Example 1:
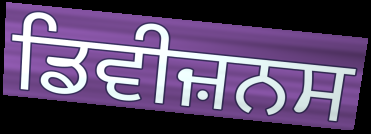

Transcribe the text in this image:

ਡਿਵੀਜ਼ਨਸ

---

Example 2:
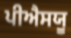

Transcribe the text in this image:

ਪੀਐਸਯੂ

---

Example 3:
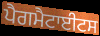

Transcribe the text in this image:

ਪੈਗਮੈਟਾਈਟਸ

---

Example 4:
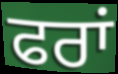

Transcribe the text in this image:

ਫਰਾਂ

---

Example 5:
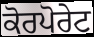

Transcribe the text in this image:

ਕੋਰਪੋਰੇਟ